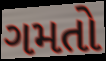
ગમતો